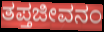
ತಪ್ತಜೀವನಂ